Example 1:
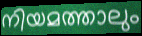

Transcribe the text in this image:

നിയമത്താലും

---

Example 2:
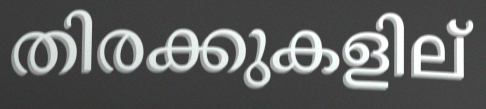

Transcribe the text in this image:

തിരക്കുകളില്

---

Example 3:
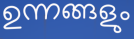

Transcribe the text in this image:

ഉന്നങ്ങളും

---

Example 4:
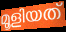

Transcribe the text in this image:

മൂളിയത്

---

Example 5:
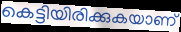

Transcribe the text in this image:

കെട്ടിയിരിക്കുകയാണ്